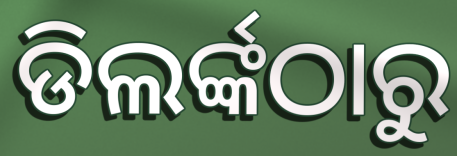
ଡିଲର୍ଙ୍କଠାରୁ